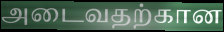
அடைவதற்கான